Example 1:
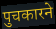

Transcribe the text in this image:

पुचकारने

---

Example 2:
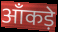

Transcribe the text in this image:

आँकड़े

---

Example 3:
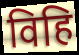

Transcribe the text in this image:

विहि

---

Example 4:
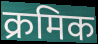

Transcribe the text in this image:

क्रमिक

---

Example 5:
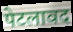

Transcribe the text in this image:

पेटलावद